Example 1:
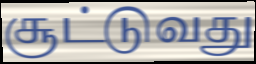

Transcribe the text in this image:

சூட்டுவது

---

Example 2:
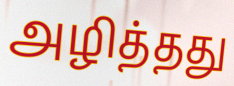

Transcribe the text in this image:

அழித்தது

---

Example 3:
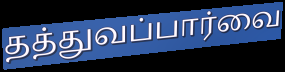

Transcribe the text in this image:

தத்துவப்பார்வை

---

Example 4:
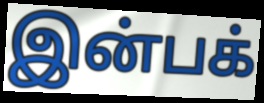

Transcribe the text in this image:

இன்பக்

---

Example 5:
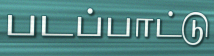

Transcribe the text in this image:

படப்பாட்டு